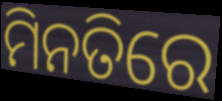
ମିନତିରେ